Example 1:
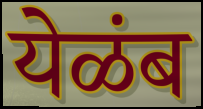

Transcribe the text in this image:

येळंब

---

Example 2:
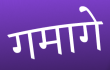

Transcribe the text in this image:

गमागे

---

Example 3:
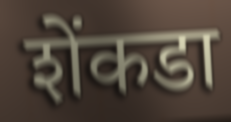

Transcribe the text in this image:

शेंकडा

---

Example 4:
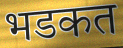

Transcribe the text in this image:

भडकत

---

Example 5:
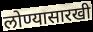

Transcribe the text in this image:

लोण्यासारखी